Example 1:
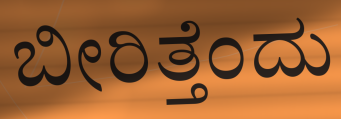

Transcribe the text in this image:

ಬೀರಿತ್ತೆಂದು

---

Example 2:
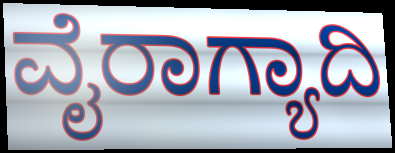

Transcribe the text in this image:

ವೈರಾಗ್ಯಾದಿ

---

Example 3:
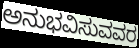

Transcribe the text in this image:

ಅನುಭವಿಸುವವರ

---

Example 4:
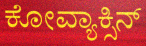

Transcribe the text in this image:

ಕೋವ್ಯಾಕ್ಸಿನ್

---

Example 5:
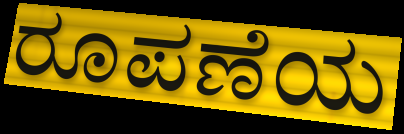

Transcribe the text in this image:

ರೂಪಣೆಯ